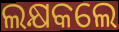
ଲକ୍ଷକଲେ